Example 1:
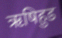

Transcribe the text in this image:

ऋषिहुड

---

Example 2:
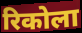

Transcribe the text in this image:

रिकोला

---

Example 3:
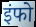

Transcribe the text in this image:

इंफो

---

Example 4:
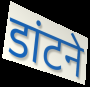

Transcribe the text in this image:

डांटने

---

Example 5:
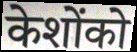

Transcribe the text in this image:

केशोंको